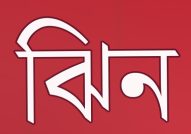
ঝিন